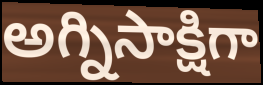
అగ్నిసాక్షిగా